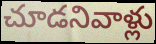
చూడనివాళ్లు